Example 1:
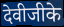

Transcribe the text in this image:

देवीजीके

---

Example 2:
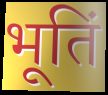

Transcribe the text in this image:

भूतिं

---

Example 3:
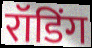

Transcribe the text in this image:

रॉडिंग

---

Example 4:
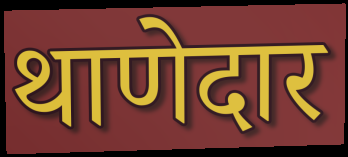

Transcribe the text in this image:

थाणेदार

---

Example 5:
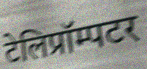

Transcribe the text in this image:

टेलिप्रॉम्पटर